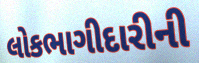
લોકભાગીદારીની